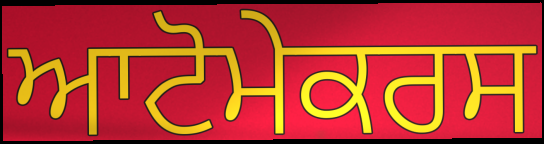
ਆਟੋਮੇਕਰਸ